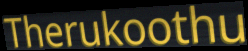
Therukoothu